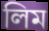
লিম